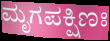
ಮೃಗಪಕ್ಷಿಣಃ